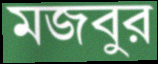
মজবুর